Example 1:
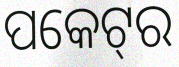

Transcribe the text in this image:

ପକେଟ୍‌ର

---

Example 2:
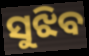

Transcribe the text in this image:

ସୁଝିବ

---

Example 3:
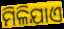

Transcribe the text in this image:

ମିଳିଯାଏ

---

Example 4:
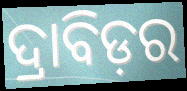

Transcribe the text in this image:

ଦ୍ରାବିଡ଼ର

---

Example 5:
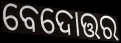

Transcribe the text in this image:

ବେଦୋତ୍ତର